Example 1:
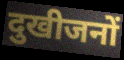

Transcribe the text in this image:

दुखीजनों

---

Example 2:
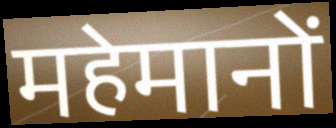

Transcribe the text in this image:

महेमानों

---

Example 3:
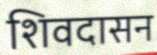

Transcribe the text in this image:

शिवदासन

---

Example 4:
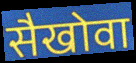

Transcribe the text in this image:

सैखोवा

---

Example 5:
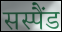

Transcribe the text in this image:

सस्पैंड